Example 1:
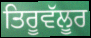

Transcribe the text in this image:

ਤਿਰੂਵੱਲੂਰ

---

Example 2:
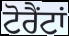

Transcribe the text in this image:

ਟੋਰੈਂਟਾਂ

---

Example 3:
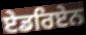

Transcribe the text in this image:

ਏਡਰਿਏਨ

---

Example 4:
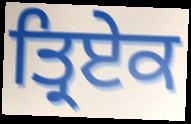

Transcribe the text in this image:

ਤ੍ਰਿਏਕ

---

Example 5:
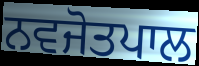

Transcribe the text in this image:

ਨਵਜੋਤਪਾਲ